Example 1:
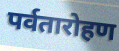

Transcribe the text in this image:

पर्वतारोहण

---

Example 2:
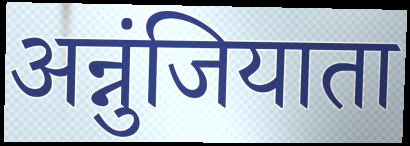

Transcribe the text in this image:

अन्नुंजियाता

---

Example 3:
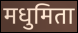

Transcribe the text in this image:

मधुमिता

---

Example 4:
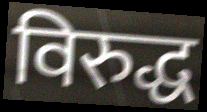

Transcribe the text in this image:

विरुद्ध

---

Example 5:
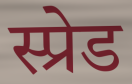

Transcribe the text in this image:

स्प्रेड